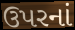
ઉપરનાં